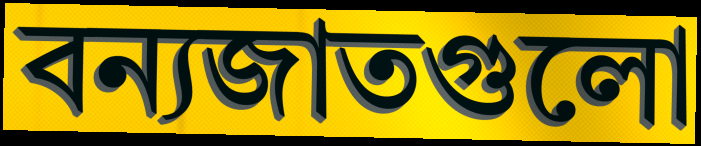
বন্যজাতগুলো